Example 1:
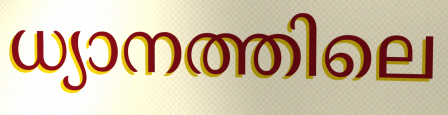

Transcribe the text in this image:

ധ്യാനത്തിലെ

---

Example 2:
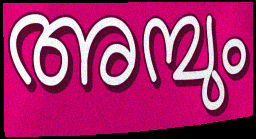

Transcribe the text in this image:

അമ്പും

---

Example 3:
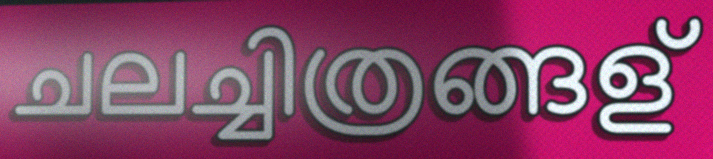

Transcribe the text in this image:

ചലച്ചിത്രങ്ങള്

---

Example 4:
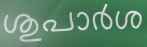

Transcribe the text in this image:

ശുപാർശ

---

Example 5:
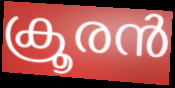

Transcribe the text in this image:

ക്രൂരൻ